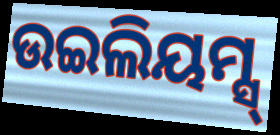
ଉଇଲିୟମ୍ସ୍